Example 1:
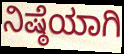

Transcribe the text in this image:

ನಿಷ್ಠೆಯಾಗಿ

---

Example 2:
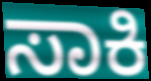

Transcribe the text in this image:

ಸಾಕಿ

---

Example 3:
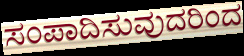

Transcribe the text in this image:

ಸಂಪಾದಿಸುವುದರಿಂದ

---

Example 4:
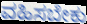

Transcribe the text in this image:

ವಹಿಸಬೇಕು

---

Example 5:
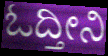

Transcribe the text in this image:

ಓದ್ತೀನಿ